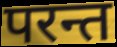
परन्त